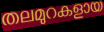
തലമുറകളായ